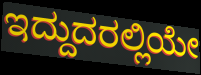
ಇದ್ದುದರಲ್ಲಿಯೇ